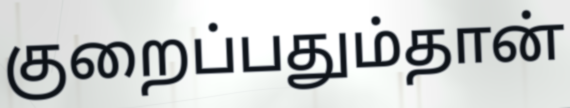
குறைப்பதும்தான்